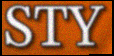
STY